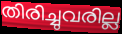
തിരിച്ചുവരില്ല